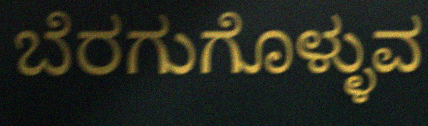
ಬೆರಗುಗೊಳ್ಳುವ